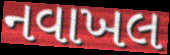
નવાખલ